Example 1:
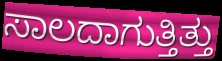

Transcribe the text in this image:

ಸಾಲದಾಗುತ್ತಿತ್ತು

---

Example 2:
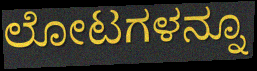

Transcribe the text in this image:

ಲೋಟಗಳನ್ನೂ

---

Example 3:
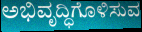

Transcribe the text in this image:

ಅಭಿವೃದ್ಧಿಗೊಳಿಸುವ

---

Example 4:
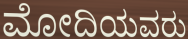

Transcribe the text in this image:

ಮೋದಿಯವರು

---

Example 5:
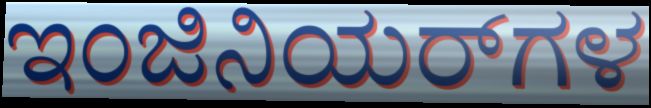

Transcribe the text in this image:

ಇಂಜಿನಿಯರ್‌ಗಳ